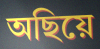
অছিয়ে